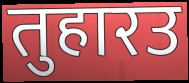
तुहारउ